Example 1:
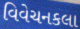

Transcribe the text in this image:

વિવેચનકલા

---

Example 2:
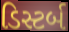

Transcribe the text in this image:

ડિસ્ટર્બ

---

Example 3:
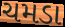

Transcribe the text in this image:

ચમડા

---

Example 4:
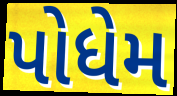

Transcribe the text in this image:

પોધેમ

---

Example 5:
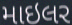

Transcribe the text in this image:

માઇલર